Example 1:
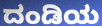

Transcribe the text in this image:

ದಂಡಿಯ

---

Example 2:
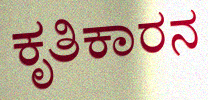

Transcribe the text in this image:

ಕೃತಿಕಾರನ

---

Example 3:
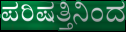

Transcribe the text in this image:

ಪರಿಷತ್ತಿನಿಂದ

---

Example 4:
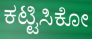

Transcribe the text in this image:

ಕಟ್ಟಿಸಿಕೋ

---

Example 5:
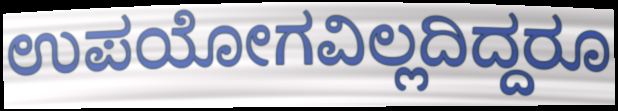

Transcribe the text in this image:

ಉಪಯೋಗವಿಲ್ಲದಿದ್ದರೂ